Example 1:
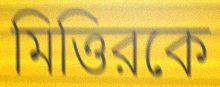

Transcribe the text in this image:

মিত্তিরকে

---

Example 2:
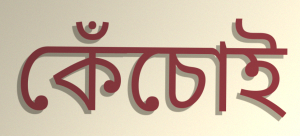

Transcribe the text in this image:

কেঁচোই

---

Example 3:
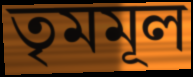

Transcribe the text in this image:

তৃমমূল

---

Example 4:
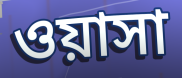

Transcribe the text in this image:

ওয়াসা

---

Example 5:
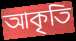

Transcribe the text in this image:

আকৃতি